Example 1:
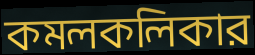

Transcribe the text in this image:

কমলকলিকার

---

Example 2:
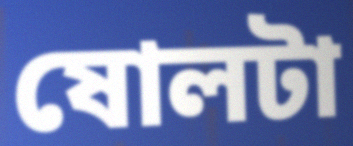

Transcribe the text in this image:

ষোলটা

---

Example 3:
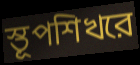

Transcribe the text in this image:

স্তূপশিখরে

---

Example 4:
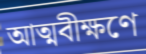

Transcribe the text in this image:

আত্মবীক্ষণে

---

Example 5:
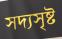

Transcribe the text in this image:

সদ্যসৃষ্ট